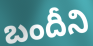
బందీని